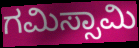
ಗಮಿಸ್ಸಾಮಿ